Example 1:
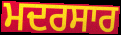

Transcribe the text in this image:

ਮਦਰਸਾਰ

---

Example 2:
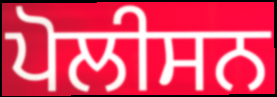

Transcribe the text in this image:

ਪੋਲੀਸਨ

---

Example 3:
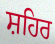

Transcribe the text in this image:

ਸ਼ਹਿਰ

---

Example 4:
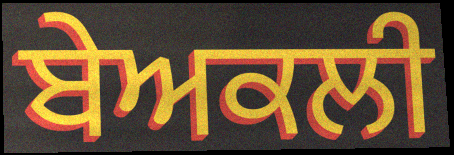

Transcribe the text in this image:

ਬੇਅਕਲੀ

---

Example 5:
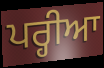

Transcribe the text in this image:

ਪਰ੍ਹੀਆ